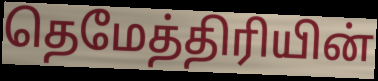
தெமேத்திரியின்